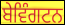
ਬੇਵਿੰਗਟਨ